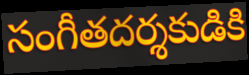
సంగీతదర్శకుడికి